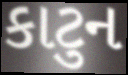
કાટુન